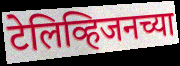
टेलिव्हिजनच्या